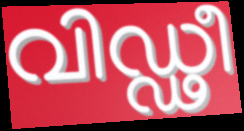
വിഡ്ഢീ